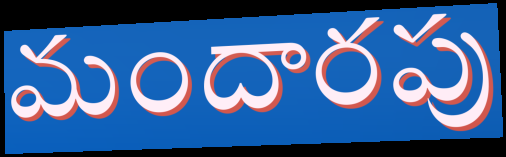
మందారపు